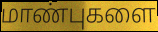
மாண்புகளை